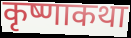
कृष्णाकथा